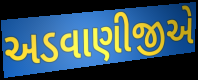
અડવાણીજીએ